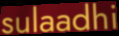
sulaadhi